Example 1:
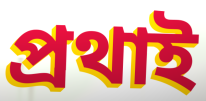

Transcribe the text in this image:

প্ৰথাই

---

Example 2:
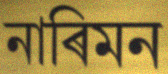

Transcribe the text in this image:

নাৰিমন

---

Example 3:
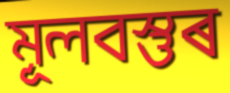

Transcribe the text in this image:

মূলবস্তুৰ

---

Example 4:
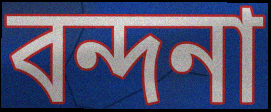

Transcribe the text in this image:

বন্দনা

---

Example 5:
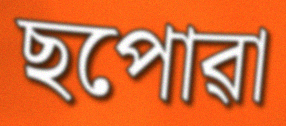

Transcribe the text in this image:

ছপোৱা